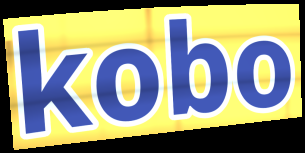
kobo